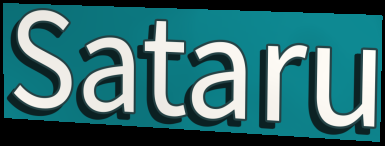
Sataru